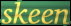
skeen